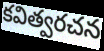
కవిత్వరచన